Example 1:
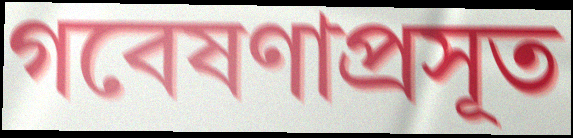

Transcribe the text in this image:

গবেষণাপ্রসূত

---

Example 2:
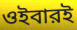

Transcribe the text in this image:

ওইবারই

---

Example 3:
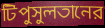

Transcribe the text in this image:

টিপুসুলতানের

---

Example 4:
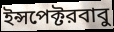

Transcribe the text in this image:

ইন্সপেক্টরবাবু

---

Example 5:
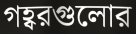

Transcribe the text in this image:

গহ্বরগুলোর